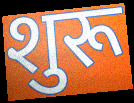
शुरू